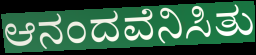
ಆನಂದವೆನಿಸಿತು